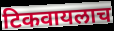
टिकवायलाच